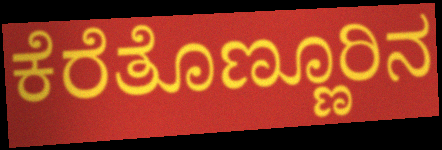
ಕೆರೆತೊಣ್ಣೂರಿನ